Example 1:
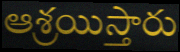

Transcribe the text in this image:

ఆశ్రయిస్తారు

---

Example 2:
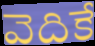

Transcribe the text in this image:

వెదికే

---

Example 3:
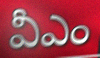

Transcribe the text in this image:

వీఎం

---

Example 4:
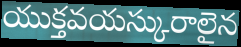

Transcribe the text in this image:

యుక్తవయస్కురాలైన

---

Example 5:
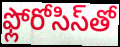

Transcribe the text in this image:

ఫ్లోరోసిస్‌తో